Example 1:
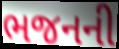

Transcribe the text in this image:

ભજનની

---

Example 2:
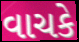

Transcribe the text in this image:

વાચકે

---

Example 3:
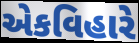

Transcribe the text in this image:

એકવિહારે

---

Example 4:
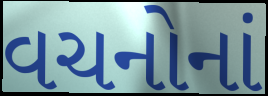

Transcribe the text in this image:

વચનોનાં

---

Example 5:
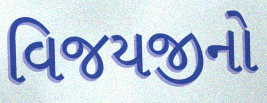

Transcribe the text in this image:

વિજયજીનો